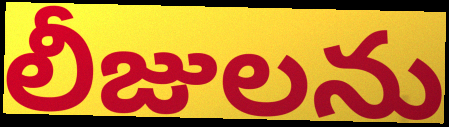
లీజులను